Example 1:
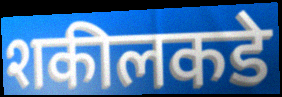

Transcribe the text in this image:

शकीलकडे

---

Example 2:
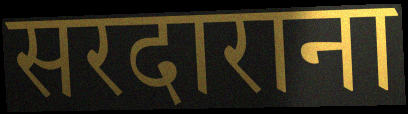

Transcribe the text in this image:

सरदाराना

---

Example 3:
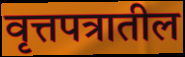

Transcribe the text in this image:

वृत्तपत्रातील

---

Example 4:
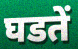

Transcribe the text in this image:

घडतें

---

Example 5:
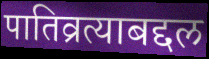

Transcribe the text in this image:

पातिव्रत्याबद्दल